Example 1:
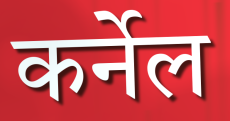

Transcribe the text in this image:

कर्नेल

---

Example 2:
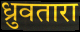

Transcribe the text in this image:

ध्रुवतारा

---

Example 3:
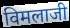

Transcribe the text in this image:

विमलाजी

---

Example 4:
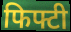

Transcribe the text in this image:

फिफ्टी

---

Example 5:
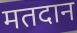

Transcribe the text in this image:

मतदान